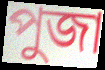
পুজা